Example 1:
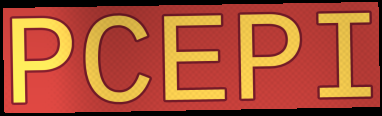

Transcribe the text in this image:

PCEPI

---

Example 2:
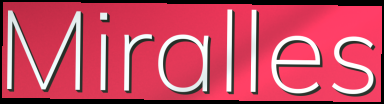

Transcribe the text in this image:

Miralles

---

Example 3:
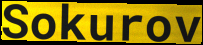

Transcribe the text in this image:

Sokurov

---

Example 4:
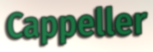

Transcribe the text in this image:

Cappeller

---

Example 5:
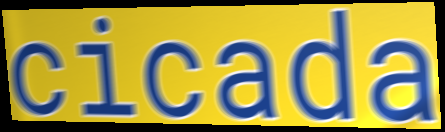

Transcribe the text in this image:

cicada